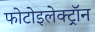
फोटोइलेक्ट्रॉन